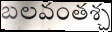
బలవంతశ్చ